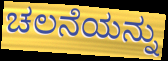
ಚಲನೆಯನ್ನು